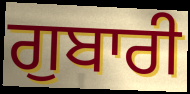
ਗੁਬਾਰੀ